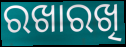
ରଖାରଖି